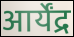
आर्येंद्र